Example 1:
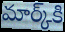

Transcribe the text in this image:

మార్క్‌కి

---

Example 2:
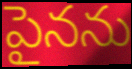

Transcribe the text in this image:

పైనను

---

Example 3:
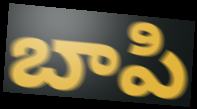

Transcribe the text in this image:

బాపి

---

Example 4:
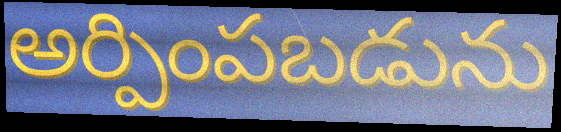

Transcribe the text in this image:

అర్పింపబడును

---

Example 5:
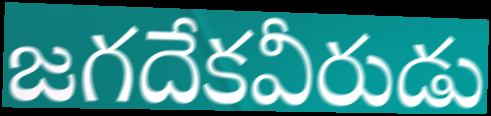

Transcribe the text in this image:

జగదేకవీరుడు